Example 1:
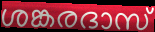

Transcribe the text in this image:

ശങ്കരദാസ്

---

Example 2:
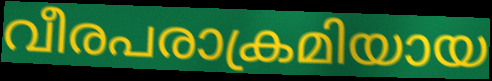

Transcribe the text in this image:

വീരപരാക്രമിയായ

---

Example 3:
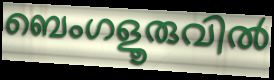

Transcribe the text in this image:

ബെംഗളൂരുവിൽ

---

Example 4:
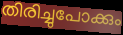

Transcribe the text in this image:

തിരിച്ചുപോക്കും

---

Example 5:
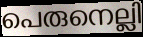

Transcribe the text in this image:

പെരുനെല്ലി